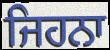
ਜਿਹਨਾ